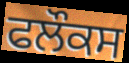
ਫਲੌਕਸ